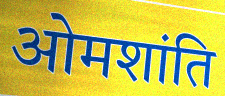
ओमशांति